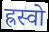
ह्रस्वो